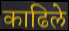
काढिले